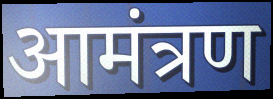
आमंत्रण